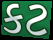
કટ